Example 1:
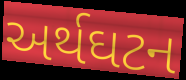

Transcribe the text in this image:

અર્થઘટન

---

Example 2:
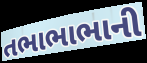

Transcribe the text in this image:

તભાભાભાની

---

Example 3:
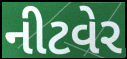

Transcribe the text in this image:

નીટવેર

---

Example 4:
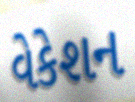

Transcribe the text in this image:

વેકેશન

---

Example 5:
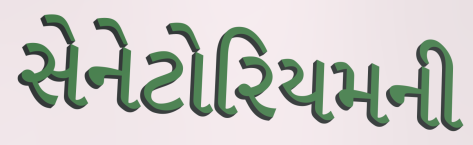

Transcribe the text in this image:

સેનેટોરિયમની